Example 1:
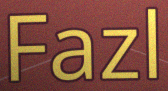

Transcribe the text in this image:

Fazl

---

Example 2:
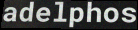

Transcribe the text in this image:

adelphos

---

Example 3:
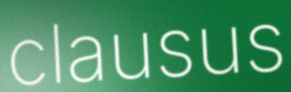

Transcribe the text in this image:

clausus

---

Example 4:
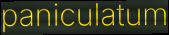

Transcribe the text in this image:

paniculatum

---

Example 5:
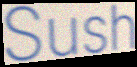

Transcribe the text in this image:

Sush